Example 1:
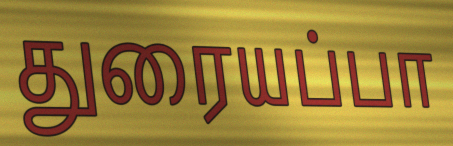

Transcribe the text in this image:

துரையப்பா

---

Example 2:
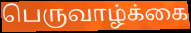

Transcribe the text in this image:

பெருவாழ்க்கை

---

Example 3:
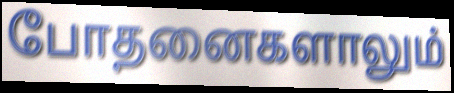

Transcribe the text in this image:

போதனைகளாலும்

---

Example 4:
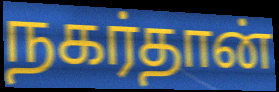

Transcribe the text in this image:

நகர்தான்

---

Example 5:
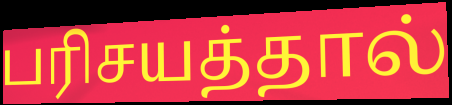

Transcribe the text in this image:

பரிசயத்தால்